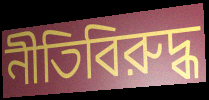
নীতিবিরুদ্ধ